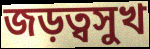
জড়ত্বসুখ